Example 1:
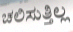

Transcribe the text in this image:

ಚಲಿಸುತ್ತಿಲ್ಲ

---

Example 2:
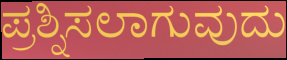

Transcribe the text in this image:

ಪ್ರಶ್ನಿಸಲಾಗುವುದು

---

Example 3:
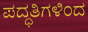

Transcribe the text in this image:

ಪದ್ಧತಿಗಳಿಂದ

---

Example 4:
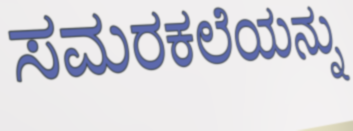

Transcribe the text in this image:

ಸಮರಕಲೆಯನ್ನು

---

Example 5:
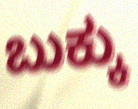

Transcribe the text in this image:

ಬುಕ್ಕು